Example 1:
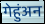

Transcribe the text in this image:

गेहुंअन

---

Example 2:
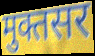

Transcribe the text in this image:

मुक्तसर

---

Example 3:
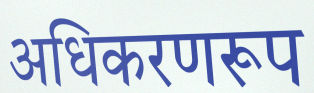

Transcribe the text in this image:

अधिकरणरूप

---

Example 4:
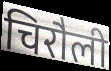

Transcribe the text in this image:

चिरौली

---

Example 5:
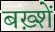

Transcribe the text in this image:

बख़्शें